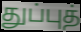
துப்புத்